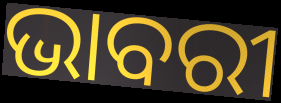
ଭାବରୀ